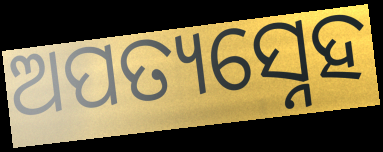
ଅପତ୍ୟସ୍ନେହ